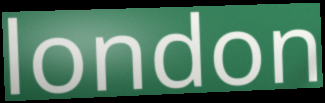
london